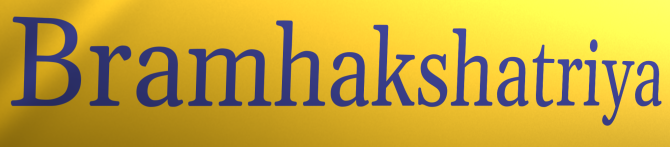
Bramhakshatriya